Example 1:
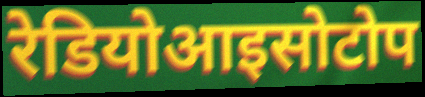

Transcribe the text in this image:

रेडियोआइसोटोप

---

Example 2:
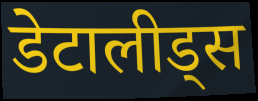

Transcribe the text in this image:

डेटालीड्स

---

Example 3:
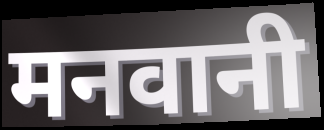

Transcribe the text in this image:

मनवानी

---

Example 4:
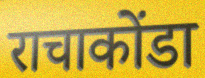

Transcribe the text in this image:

राचाकोंडा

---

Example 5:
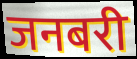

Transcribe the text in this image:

जनबरी